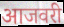
आजवरी